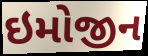
ઇમોજીન